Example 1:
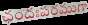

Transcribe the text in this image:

ఛందఃపరముగా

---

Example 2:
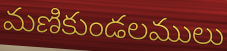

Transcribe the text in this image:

మణికుండలములు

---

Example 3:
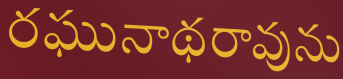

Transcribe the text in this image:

రఘునాథరావును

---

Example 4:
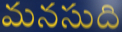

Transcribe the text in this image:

మనసుది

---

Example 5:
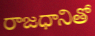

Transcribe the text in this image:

రాజధానితో